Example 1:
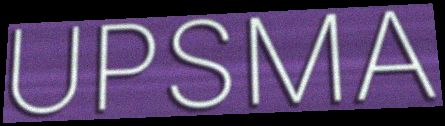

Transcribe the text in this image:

UPSMA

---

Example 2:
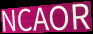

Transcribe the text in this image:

NCAOR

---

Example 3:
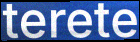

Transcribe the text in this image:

terete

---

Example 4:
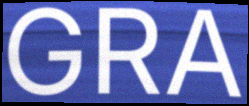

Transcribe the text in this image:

GRA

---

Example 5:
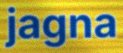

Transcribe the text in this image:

jagna